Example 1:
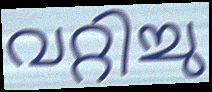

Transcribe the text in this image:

വറ്റിച്ചു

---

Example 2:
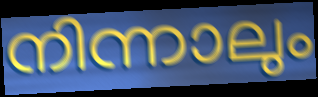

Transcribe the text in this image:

നിന്നാലും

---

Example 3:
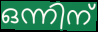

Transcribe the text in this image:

ഒന്നിന്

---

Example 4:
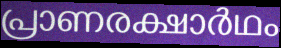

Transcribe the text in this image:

പ്രാണരക്ഷാർഥം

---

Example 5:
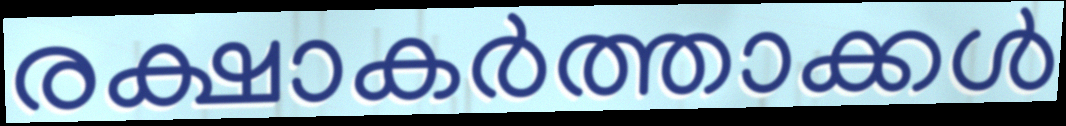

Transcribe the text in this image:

രക്ഷാകർത്താക്കൾ